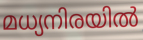
മധ്യനിരയിൽ